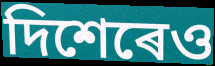
দিশেৰেও